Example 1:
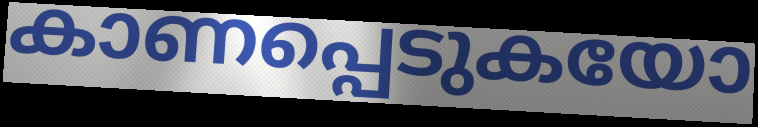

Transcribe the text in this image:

കാണപ്പെടുകയോ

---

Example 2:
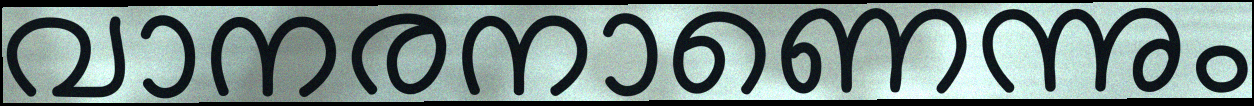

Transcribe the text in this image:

വാനരനാണെന്നും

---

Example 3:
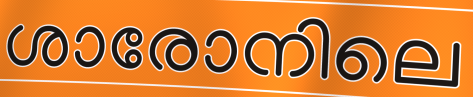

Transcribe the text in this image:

ശാരോനിലെ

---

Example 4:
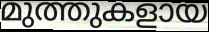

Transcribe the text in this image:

മുത്തുകളായ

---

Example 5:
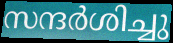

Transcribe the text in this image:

സന്ദർശിച്ചു